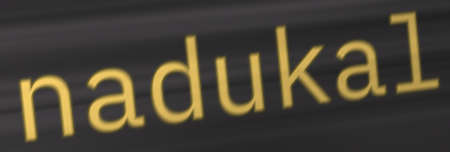
nadukal